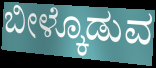
ಬೀಳ್ಕೊಡುವ